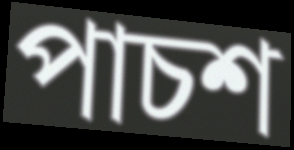
পাচশ